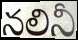
నలినీ